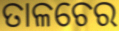
ତାଳଚେର